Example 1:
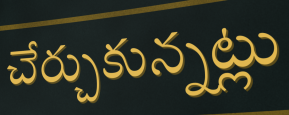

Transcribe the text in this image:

చేర్చుకున్నట్లు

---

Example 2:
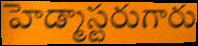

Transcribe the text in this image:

హెడ్మాస్టరుగారు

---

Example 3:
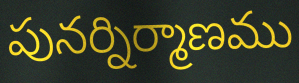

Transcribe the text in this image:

పునర్నిర్మాణము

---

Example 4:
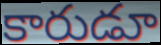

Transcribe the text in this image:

కారుడూ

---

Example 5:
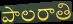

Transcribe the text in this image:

పాలరాతి